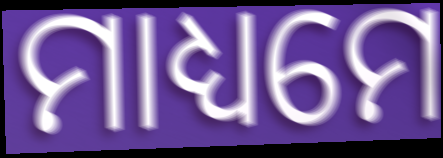
ମାଧ୍ୟମେ